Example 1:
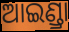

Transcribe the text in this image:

ଆଇଣ୍ଡ୍ରା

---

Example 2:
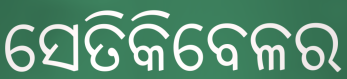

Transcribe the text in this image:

ସେତିକିବେଳର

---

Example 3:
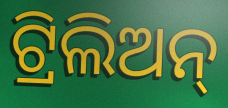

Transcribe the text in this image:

ଟ୍ରିଲିଅନ୍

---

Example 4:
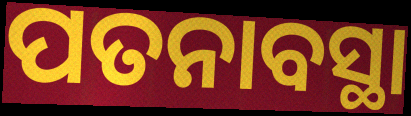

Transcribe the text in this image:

ପତନାବସ୍ଥା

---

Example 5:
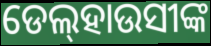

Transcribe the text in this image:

ଡେଲ୍‌ହାଉସୀଙ୍କ